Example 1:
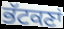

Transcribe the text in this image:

ਭੱਟਕਣਾਂ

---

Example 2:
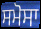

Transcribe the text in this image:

ਸਮੋਸਾ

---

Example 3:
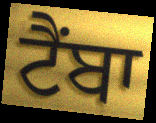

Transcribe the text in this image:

ਟੈਂਬਾ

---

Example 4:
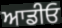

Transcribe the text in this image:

ਆਡੀਓ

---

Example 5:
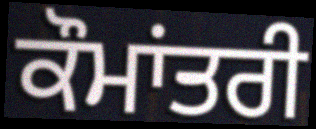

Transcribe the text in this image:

ਕੌਮਾਂਤਰੀ